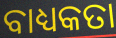
ବାଧ୍ୟକତା